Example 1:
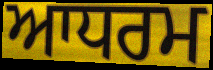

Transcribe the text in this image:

ਆਧਰਮ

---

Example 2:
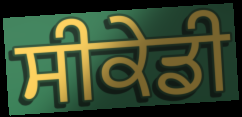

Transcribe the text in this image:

ਸੀਕੇਡੀ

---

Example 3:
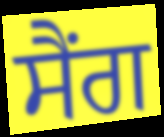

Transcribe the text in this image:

ਸੈਂਗ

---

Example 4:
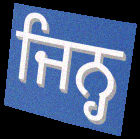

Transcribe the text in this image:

ਜਿਨ੍ਹ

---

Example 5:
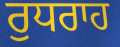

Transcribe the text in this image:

ਰੁਧਰਾਹ